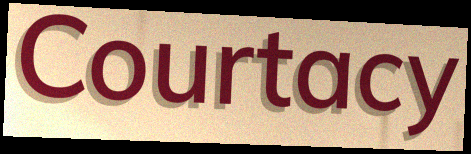
Courtacy